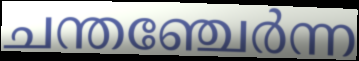
ചന്തഞ്ചേർന്ന